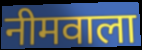
नीमवाला